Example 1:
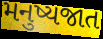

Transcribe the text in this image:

મનુષ્યજાત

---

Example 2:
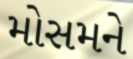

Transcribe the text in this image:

મોસમને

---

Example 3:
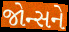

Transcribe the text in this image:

જોન્સને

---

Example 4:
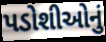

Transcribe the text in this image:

પડોશીઓનું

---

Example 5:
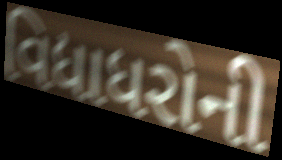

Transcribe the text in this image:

વિદ્યાધરોની